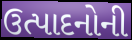
ઉત્પાદનોની